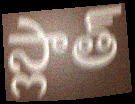
స్లాత్